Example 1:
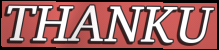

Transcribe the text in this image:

THANKU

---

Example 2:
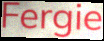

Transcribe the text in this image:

Fergie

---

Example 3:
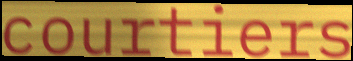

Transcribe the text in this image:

courtiers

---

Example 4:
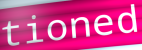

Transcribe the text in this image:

tioned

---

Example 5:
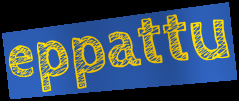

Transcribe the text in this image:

eppattu